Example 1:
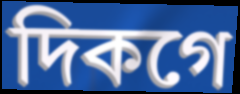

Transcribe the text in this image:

দিকগে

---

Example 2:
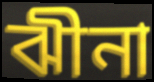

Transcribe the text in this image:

ঝীনা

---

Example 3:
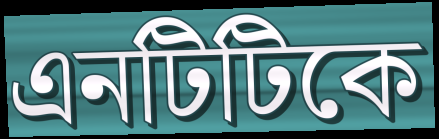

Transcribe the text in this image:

এনটিটিকে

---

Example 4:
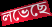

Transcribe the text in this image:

লভেছে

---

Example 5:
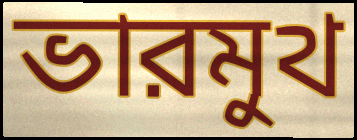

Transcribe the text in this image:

ভারমুথ